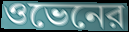
ওভেনের